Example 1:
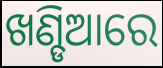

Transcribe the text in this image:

ଖଣ୍ଡିଆରେ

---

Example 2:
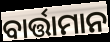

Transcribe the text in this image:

ବାର୍ତ୍ତାମାନ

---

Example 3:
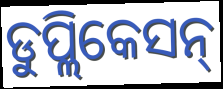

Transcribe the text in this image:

ଡୁପ୍ଲିକେସନ୍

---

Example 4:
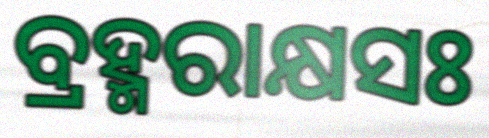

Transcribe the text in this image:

ବ୍ରହ୍ମରାକ୍ଷସଃ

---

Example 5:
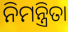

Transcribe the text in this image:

ନିମନ୍ତ୍ରିତା